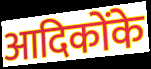
आदिकोंके